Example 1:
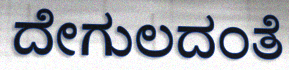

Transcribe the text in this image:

ದೇಗುಲದಂತೆ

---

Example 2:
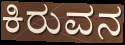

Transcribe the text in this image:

ಕಿರುವನ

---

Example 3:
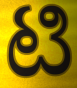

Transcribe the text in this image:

ಟಿ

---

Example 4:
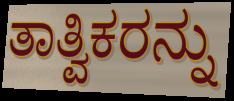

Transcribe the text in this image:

ತಾತ್ವಿಕರನ್ನು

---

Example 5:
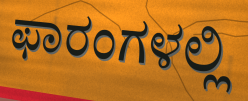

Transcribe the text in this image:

ಫಾರಂಗಳಲ್ಲಿ